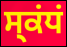
ਸ੍ਕਂਧਂ